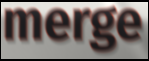
merge